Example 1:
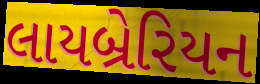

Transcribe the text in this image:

લાયબ્રેરિયન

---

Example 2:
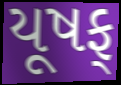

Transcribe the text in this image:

યૂષફ્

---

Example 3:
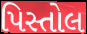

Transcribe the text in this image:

પિસ્તોલ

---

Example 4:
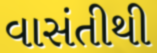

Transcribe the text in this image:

વાસંતીથી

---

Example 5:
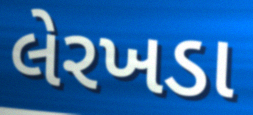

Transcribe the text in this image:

લેરખડા